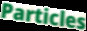
Particles